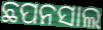
ଛପନସାଲ